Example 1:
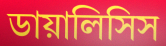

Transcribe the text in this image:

ডায়ালিসিস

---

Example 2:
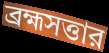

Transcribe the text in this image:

ব্রহ্মসত্তার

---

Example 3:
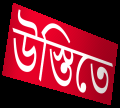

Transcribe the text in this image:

উস্তিতে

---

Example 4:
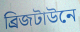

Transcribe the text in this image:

ব্রিজটাউনে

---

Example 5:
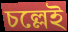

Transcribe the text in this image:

চল্লেই